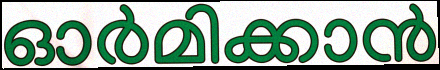
ഓർമിക്കാൻ